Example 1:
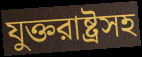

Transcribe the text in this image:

যুক্তরাষ্ট্রসহ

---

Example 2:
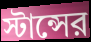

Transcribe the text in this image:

স্টান্সের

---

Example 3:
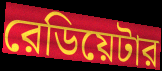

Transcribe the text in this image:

রেডিয়েটার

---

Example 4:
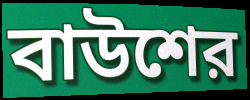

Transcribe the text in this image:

বাউশের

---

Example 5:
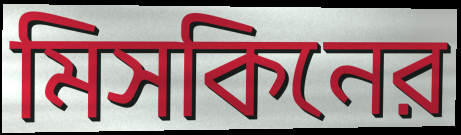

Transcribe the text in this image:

মিসকিনের